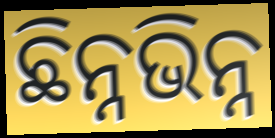
ଛିନ୍ନଭିନ୍ନ